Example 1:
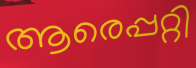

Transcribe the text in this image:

ആരെപ്പറ്റി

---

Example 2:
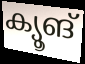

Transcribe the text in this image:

ക്യൂങ്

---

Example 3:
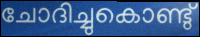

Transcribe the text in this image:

ചോദിച്ചുകൊണ്ടു്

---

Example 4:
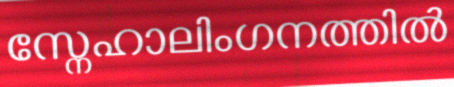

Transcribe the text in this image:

സ്നേഹാലിംഗനത്തിൽ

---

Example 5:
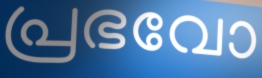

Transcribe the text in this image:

പ്രഭവോ